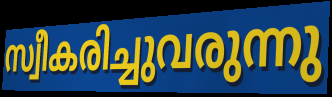
സ്വീകരിച്ചുവരുന്നു